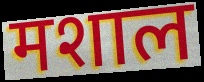
मशाल